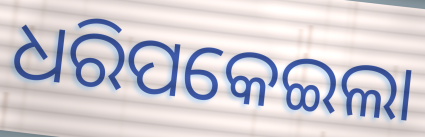
ଧରିପକେଇଲା